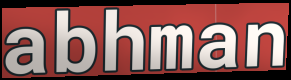
abhman